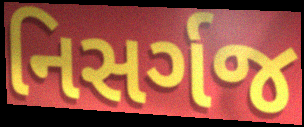
નિસર્ગજ